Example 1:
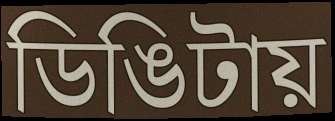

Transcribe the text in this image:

ডিঙিটায়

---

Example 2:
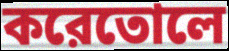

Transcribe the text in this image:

করেতোলে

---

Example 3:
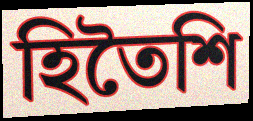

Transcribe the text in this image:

হিতৈশি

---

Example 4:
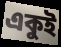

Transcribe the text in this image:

একুই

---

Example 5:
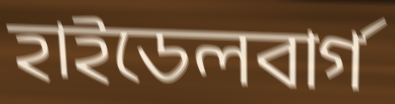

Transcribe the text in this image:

হাইডেলবার্গ